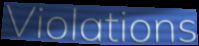
Violations